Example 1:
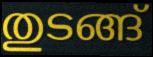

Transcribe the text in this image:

തുടങ്ങ്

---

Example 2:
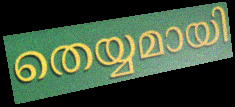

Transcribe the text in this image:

തെയ്യമായി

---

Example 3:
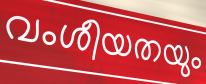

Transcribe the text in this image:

വംശീയതയും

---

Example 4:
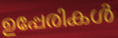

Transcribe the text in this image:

ഉപ്പേരികൾ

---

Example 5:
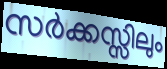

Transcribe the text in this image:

സർക്കസ്സിലും